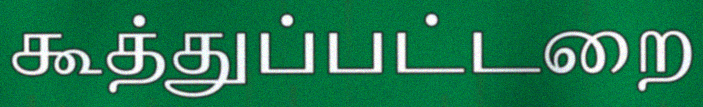
கூத்துப்பட்டறை